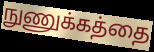
நுணுக்கத்தை